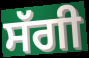
ਸੱਗੀ